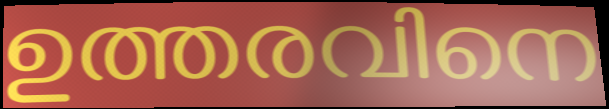
ഉത്തരവിനെ